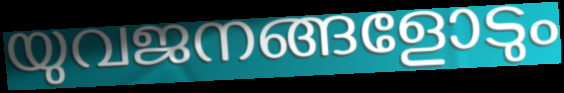
യുവജനങ്ങളോടും